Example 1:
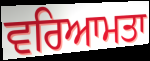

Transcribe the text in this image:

ਵਰਿਆਮਤਾ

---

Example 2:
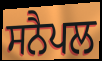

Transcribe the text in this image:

ਸਨੈਪਲ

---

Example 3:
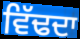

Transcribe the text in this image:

ਵਿੱਢਦਾ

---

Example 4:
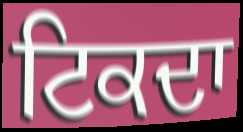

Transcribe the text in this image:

ਟਿਕਦਾ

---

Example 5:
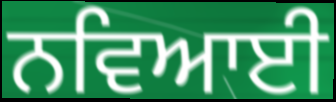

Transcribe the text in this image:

ਨਵਿਆਈ